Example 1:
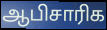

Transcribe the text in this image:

ஆபிசாரிக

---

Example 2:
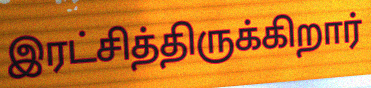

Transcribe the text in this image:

இரட்சித்திருக்கிறார்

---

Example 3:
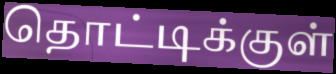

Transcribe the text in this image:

தொட்டிக்குள்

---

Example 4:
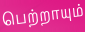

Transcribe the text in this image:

பெற்றாயும்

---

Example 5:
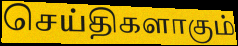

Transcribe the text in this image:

செய்திகளாகும்